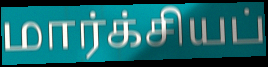
மார்க்சியப்